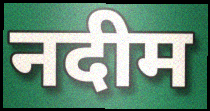
नदीम